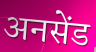
अनसेंड